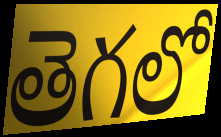
తెగలో